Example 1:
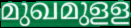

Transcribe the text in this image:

മുഖമുളള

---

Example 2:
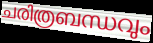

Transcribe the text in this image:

ചരിത്രബന്ധവും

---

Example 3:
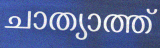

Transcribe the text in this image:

ചാത്യാത്ത്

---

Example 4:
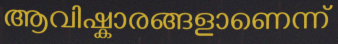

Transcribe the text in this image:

ആവിഷ്കാരങ്ങളാണെന്ന്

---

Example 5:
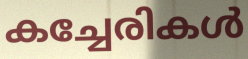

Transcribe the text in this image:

കച്ചേരികൾ